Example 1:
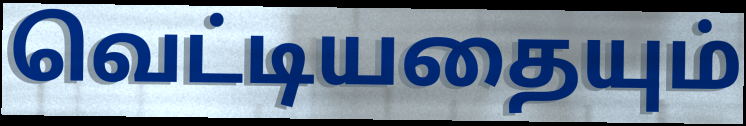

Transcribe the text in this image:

வெட்டியதையும்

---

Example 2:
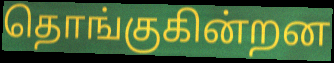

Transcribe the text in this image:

தொங்குகின்றன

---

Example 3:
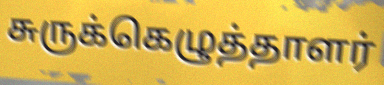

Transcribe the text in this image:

சுருக்கெழுத்தாளர்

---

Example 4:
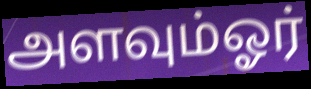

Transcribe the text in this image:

அளவும்ஓர்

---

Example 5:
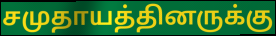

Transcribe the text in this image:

சமுதாயத்தினருக்கு